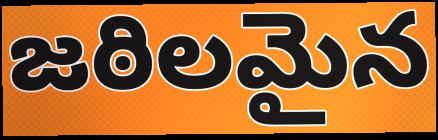
జఠిలమైన